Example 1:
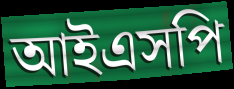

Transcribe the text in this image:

আইএসপি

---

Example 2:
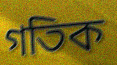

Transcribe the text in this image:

গতিক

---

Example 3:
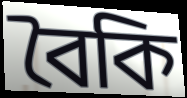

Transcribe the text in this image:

বৈকি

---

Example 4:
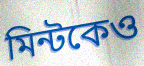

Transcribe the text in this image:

মিন্টকেও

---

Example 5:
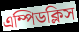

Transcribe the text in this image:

এম্পিডক্লিস